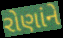
રોણાંને